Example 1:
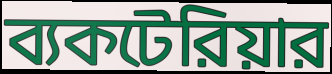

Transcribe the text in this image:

ব্যকটেরিয়ার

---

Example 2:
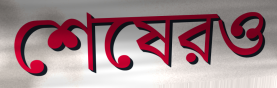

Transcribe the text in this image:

শেষেরও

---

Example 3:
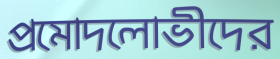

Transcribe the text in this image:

প্রমোদলোভীদের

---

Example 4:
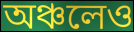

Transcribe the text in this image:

অঞ্চলেও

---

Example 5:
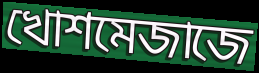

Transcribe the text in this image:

খোশমেজাজে